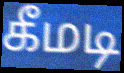
கீமடி